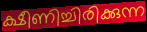
ക്ഷീണിച്ചിരിക്കുന്ന